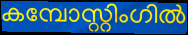
കമ്പോസ്റ്റിംഗിൽ